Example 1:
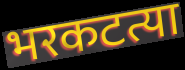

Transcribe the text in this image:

भरकटत्या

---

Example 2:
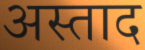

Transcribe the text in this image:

अस्ताद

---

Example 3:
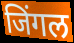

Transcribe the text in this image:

जिंगल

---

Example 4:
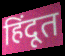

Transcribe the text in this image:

हिंदूत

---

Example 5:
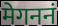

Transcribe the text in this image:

मेगननं